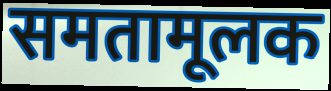
समतामूलक